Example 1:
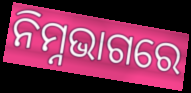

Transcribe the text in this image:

ନିମ୍ନଭାଗରେ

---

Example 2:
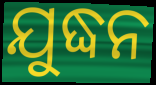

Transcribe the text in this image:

ଯୁଦ୍ଧନ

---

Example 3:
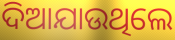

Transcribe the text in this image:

ଦିଆଯାଉଥିଲେ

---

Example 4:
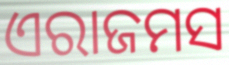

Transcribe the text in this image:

ଏରାଜମସ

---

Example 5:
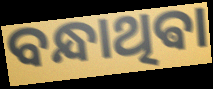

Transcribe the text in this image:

ବନ୍ଧାଥିଵା